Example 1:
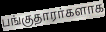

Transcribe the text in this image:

பங்குதாரர்களாக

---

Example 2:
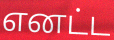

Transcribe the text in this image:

எனட்ட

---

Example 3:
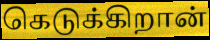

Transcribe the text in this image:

கெடுக்கிறான்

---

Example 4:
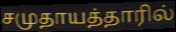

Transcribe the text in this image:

சமுதாயத்தாரில்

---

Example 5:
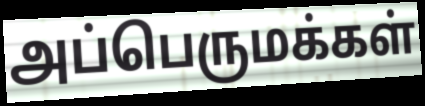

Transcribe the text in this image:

அப்பெருமக்கள்